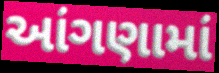
આંગણામાં